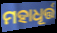
ମହାଧୂର୍ତ୍ତ